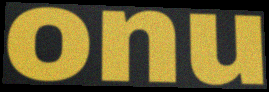
onu